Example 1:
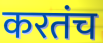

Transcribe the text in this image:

करतंच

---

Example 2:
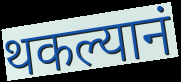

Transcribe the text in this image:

थकल्यानं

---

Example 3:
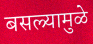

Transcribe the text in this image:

बसल्यामुळे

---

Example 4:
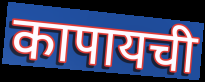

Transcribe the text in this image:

कापायची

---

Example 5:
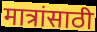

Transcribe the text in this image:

मात्रांसाठी